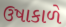
ઉષાકાળે